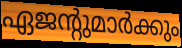
ഏജന്റുമാർക്കും